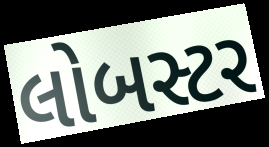
લોબસ્ટર